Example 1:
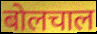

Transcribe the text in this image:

बोलचाल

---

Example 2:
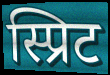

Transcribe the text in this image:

स्प्रिट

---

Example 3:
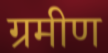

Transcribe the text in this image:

ग्रमीण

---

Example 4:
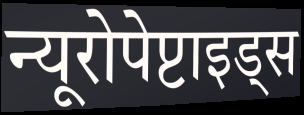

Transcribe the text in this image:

न्यूरोपेप्टाइड्स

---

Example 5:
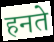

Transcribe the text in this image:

हनते